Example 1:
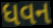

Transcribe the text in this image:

ધવન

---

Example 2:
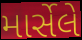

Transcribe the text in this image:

માર્સેલે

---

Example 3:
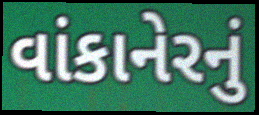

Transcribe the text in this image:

વાંકાનેરનું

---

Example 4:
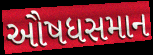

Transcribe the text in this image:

ઔષધસમાન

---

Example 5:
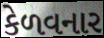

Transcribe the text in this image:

કેળવનાર